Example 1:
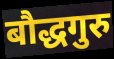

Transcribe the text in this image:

बौद्धगुरु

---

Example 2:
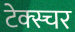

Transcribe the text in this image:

टेक्स्चर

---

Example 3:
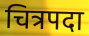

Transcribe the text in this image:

चित्रपदा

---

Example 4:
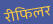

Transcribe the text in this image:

रीफिलर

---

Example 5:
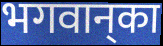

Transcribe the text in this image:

भगवान्‌का